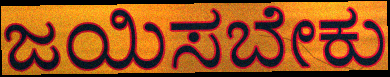
ಜಯಿಸಬೇಕು